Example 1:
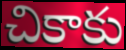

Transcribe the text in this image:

చికాకు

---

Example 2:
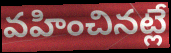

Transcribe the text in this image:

వహించినట్లే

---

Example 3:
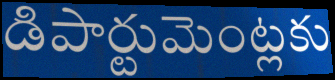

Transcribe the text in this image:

డిపార్టుమెంట్లకు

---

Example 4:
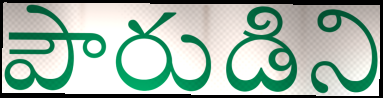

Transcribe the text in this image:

పౌరుడిని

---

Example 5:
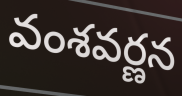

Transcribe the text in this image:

వంశవర్ణన